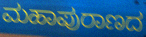
ಮಹಾಪುರಾಣದ